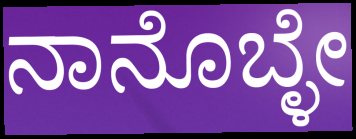
ನಾನೊಬ್ಳೇ